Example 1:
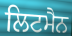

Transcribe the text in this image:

ਲਿਟਮੈਨ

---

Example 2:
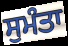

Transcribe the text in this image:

ਸੁਮੰਤਾ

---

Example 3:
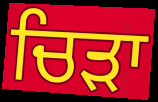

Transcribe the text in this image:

ਚਿੜਾ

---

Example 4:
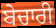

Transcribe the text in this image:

ਬੇਚਾਰੀ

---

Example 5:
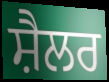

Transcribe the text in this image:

ਸ਼ੈਲਰ